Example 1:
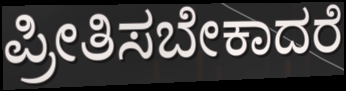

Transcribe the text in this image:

ಪ್ರೀತಿಸಬೇಕಾದರೆ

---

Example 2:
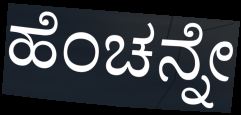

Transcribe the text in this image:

ಹೆಂಚನ್ನೇ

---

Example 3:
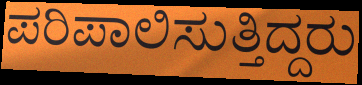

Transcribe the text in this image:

ಪರಿಪಾಲಿಸುತ್ತಿದ್ದರು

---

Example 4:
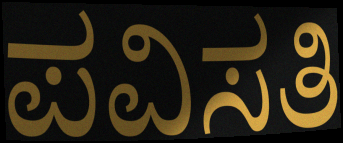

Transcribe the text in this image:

ಪವಿಸತಿ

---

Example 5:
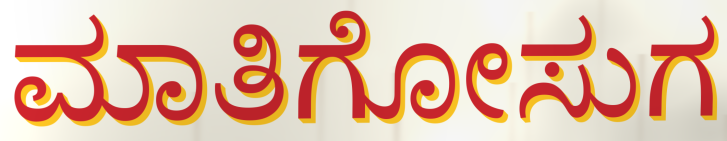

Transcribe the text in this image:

ಮಾತಿಗೋಸುಗ